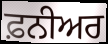
ਫ਼ਨੀਅਰ